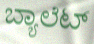
ಬ್ಯಾಲೆಟ್